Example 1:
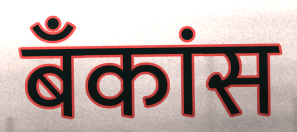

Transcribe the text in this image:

बँकांस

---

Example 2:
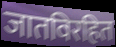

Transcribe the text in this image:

जातविरहित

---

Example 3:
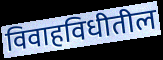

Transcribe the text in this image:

विवाहविधीतील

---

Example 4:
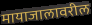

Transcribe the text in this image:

मायाजालावरील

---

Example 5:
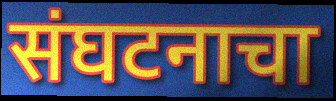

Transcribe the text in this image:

संघटनाचा